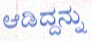
ಆಡಿದ್ದನ್ನು